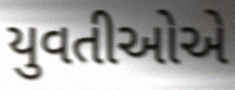
યુવતીઓએ